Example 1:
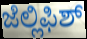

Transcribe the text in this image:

ಜೆಲ್ಲಿಫಿಶ್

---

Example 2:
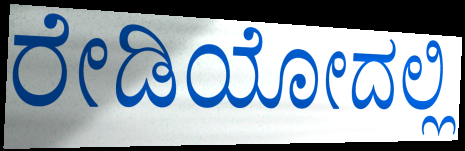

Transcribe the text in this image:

ರೇಡಿಯೋದಲ್ಲಿ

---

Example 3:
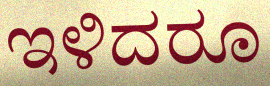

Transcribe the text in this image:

ಇಳಿದರೂ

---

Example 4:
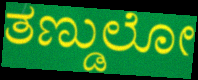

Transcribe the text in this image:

ತಣ್ಡುಲೋ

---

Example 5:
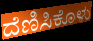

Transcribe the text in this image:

ದೆಣಿಸಿಕೊಳು